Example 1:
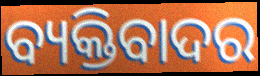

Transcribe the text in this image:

ବ୍ୟକ୍ତିବାଦର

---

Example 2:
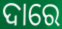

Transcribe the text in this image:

ଦାରେ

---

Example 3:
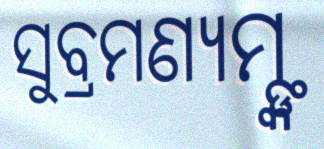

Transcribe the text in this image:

ସୁବ୍ରମଣ୍ୟମ୍ଙ୍କ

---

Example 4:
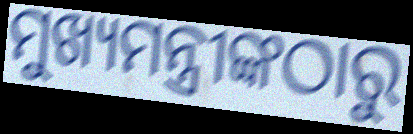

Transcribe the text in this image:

ମୁଖ୍ୟମନ୍ତ୍ରୀଙ୍କଠାରୁ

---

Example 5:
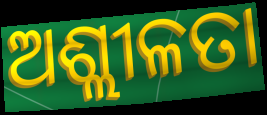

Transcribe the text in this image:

ଅଶ୍ଲୀଳତା